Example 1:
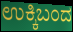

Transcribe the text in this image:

ಉಕ್ಕಿಬಂದ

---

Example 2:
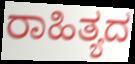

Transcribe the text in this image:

ರಾಹಿತ್ಯದ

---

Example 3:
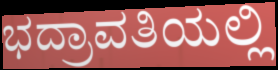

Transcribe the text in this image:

ಭದ್ರಾವತಿಯಲ್ಲಿ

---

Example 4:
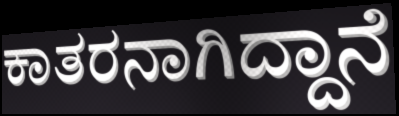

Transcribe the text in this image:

ಕಾತರನಾಗಿದ್ದಾನೆ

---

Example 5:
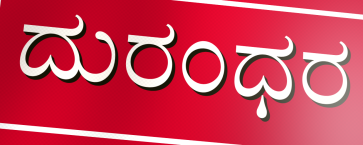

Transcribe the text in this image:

ದುರಂಧರ